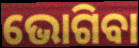
ଭୋଗିବା